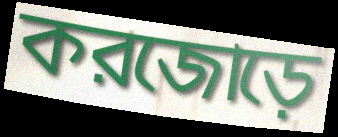
করজোড়ে